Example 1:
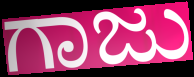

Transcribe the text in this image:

ಗಾಜು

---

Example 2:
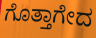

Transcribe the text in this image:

ಗೊತ್ತಾಗೇದ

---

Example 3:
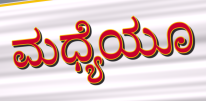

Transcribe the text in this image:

ಮಧ್ಯೆಯೂ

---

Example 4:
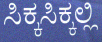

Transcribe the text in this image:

ಸಿಕ್ಕಸಿಕ್ಕಲ್ಲಿ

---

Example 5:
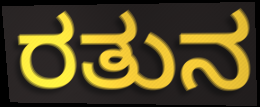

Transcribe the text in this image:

ರತುನ